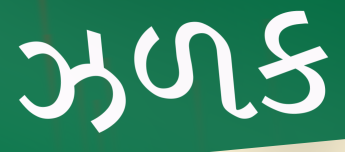
ઝળક